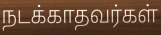
நடக்காதவர்கள்